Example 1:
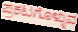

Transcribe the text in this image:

ಪ್ರಕಟಗೊಳ್ಳುವ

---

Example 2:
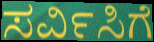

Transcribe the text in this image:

ಸರ್ವಿಸಿಗೆ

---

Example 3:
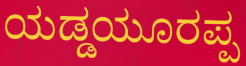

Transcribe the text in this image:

ಯಡ್ಡಯೂರಪ್ಪ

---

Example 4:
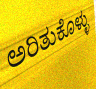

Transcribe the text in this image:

ಅರಿತುಕೊಳ್ಳು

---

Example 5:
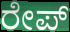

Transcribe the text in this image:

ರೇಪ್